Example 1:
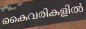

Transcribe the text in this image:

കൈവരികളിൽ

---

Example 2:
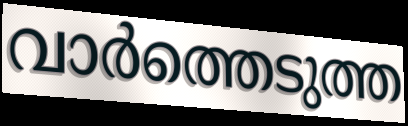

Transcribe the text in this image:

വാർത്തെടുത്ത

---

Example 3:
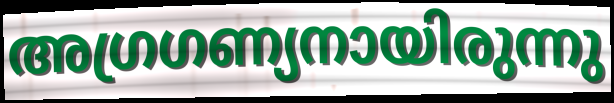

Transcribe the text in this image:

അഗ്രഗണ്യനായിരുന്നു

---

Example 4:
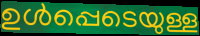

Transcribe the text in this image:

ഉൾപ്പെടെയുള്ള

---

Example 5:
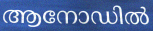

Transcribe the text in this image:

ആനോഡിൽ